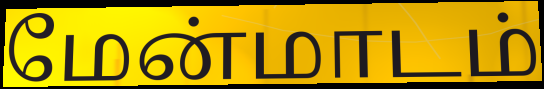
மேன்மாடம்